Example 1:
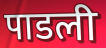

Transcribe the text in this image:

पाडली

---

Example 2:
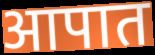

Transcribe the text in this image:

आपात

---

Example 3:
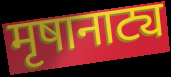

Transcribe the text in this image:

मृषानाट्य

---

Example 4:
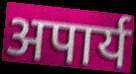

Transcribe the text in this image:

अपार्य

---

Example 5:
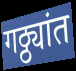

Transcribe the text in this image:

गठ्ठ्यांत